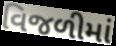
વિજળીમાં